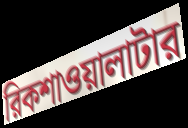
রিকশাওয়ালাটার